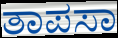
ತಾಪಸಾ